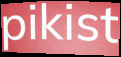
pikist